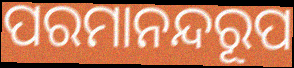
ପରମାନନ୍ଦରୂପ